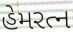
હેમરત્ન